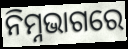
ନିମ୍ନଭାଗରେ